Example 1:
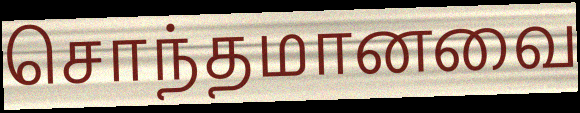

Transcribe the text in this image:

சொந்தமானவை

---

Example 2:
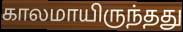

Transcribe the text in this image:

காலமாயிருந்தது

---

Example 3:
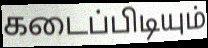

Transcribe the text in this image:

கடைப்பிடியும்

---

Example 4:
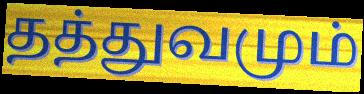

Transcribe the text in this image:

தத்துவமும்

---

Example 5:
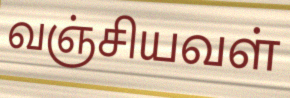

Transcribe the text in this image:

வஞ்சியவள்